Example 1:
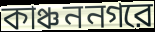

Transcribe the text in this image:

কাঞ্চননগরে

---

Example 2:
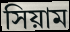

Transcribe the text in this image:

সিয়াম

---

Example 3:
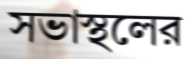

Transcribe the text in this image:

সভাস্থলের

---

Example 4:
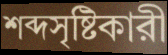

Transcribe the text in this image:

শব্দসৃষ্টিকারী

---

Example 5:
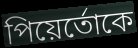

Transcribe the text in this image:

পিয়ের্তোকে